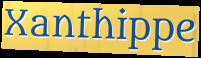
Xanthippe